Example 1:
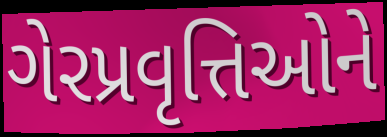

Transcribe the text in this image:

ગેરપ્રવૃત્તિઓને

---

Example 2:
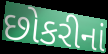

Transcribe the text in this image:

છોકરીનાં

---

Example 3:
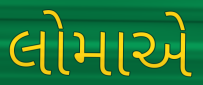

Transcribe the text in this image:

લોમાએ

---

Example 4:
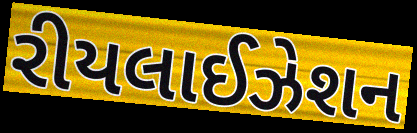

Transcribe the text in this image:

રીયલાઈઝેશન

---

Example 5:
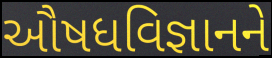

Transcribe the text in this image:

ઔષધવિજ્ઞાનને